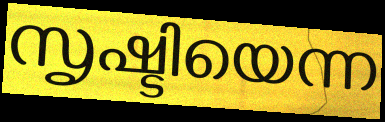
സൃഷ്ടിയെന്ന